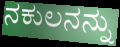
ನಕುಲನನ್ನು